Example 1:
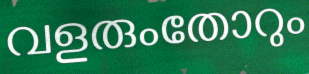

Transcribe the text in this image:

വളരുംതോറും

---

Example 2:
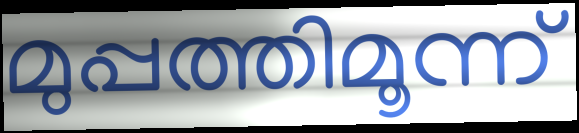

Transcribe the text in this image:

മുപ്പത്തിമൂന്ന്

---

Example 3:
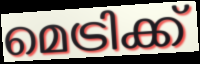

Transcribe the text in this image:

മെട്രിക്ക്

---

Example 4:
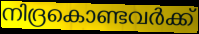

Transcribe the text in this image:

നിദ്രകൊണ്ടവർക്ക്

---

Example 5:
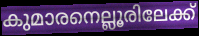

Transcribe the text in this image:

കുമാരനെല്ലൂരിലേക്ക്